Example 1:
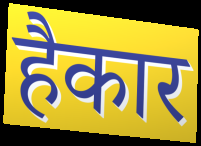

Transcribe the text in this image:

हैकार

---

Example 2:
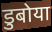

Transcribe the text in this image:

डुबोया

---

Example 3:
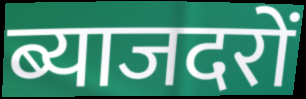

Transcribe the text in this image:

ब्याजदरों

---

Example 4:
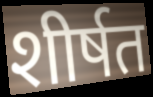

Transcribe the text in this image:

शीर्षत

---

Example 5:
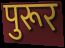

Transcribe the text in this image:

पुरूर